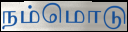
நம்மொடு